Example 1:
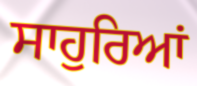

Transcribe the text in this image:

ਸਾਹੁਰਿਆਂ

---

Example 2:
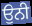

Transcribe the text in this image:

ਉਨੀ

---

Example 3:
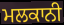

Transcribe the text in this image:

ਮਲਕਾਨੀ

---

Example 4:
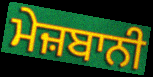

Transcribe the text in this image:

ਮੇਜ਼ਬਾਨੀ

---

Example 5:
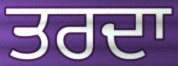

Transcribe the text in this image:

ਤਰਦਾ